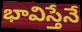
భావిస్తేనే